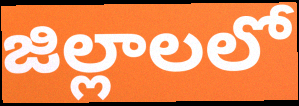
జిల్లాలలో